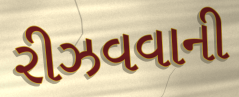
રીઝવવાની